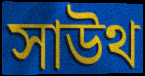
সাউথ